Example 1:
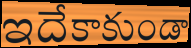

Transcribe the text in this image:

ఇదేకాకుండా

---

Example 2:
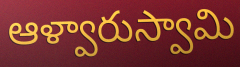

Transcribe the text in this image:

ఆళ్వారుస్వామి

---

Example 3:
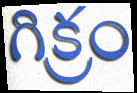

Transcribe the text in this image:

గిక్రం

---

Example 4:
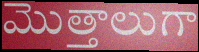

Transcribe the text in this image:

మొత్తాలుగా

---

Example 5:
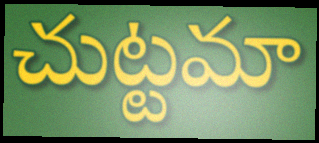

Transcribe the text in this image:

చుట్టమా